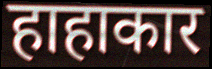
हाहाकार